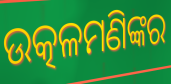
ଉତ୍କଳମଣିଙ୍କର